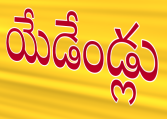
యేడేండ్లు